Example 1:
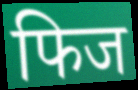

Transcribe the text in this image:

फिज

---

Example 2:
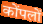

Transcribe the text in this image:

कोंपलों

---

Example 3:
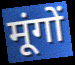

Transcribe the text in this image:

मूंगों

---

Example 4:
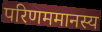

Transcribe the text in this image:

परिणममानस्य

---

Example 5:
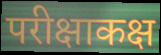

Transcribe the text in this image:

परीक्षाकक्ष